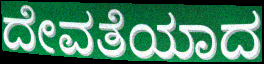
ದೇವತೆಯಾದ